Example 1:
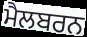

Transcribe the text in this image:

ਮੈਲਬਰਨ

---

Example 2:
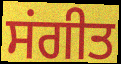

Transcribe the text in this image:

ਸਂਗੀਤ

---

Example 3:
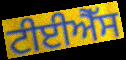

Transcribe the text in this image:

ਟੀਈਐੱਸ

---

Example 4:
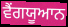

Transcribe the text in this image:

ਵੈਂਗਯੂਆਨ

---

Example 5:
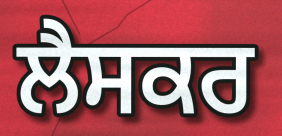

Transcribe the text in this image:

ਲੈਸਕਰ